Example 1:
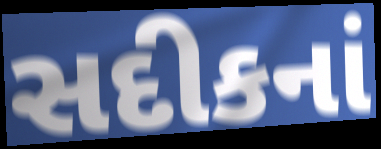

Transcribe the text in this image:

સદીકનાં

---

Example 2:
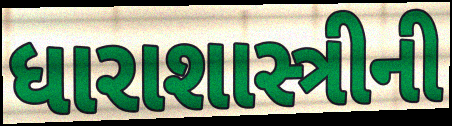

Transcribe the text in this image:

ધારાશાસ્ત્રીની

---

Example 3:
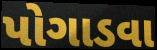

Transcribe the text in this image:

પોગાડવા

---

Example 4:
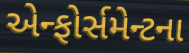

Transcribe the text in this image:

એન્ફોર્સમેન્ટના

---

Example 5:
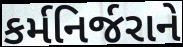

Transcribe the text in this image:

કર્મનિર્જરાને